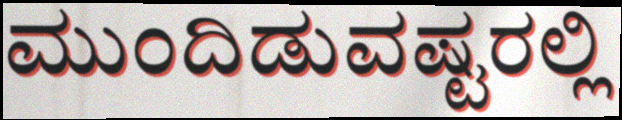
ಮುಂದಿಡುವಷ್ಟರಲ್ಲಿ